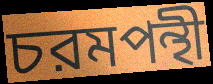
চরমপন্থী